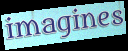
imagines